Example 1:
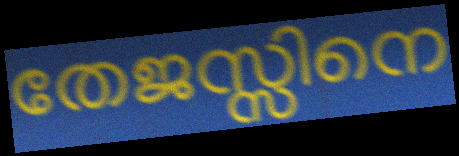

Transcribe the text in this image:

തേജസ്സിനെ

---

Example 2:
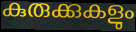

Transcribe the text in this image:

കുരുക്കുകളും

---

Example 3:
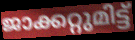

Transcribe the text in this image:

ജാക്കറ്റുമിട്ട്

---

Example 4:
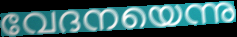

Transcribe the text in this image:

വേദനയെന്നു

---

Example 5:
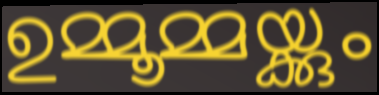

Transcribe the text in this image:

ഉമ്മൂമ്മയ്ക്കും